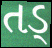
તડ્